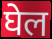
घेल